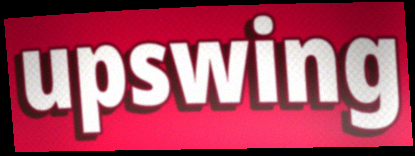
upswing